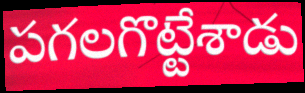
పగలగొట్టేశాడు